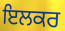
ਇਲਕਰ